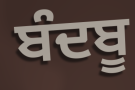
ਬੰਦਬੂ